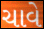
ચાવે